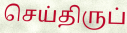
செய்திருப்